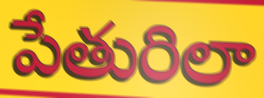
పేతురిలా